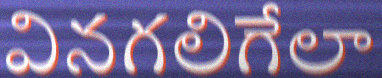
వినగలిగేలా